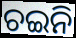
ଚଇନି